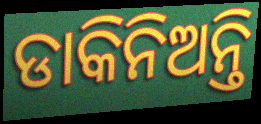
ଡାକିନିଅନ୍ତି